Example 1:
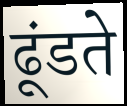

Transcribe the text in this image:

ढूंडते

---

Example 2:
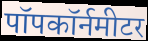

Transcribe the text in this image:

पॉपकॉर्नमीटर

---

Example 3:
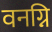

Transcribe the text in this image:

वनग्नि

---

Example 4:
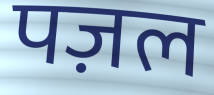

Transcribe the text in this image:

पज़ल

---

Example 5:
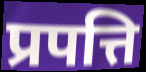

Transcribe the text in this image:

प्रपत्ति